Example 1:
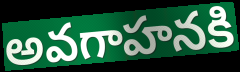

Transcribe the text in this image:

అవగాహనకి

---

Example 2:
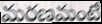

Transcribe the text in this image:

మరణమంటే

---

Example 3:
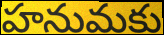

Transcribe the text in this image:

హనుమకు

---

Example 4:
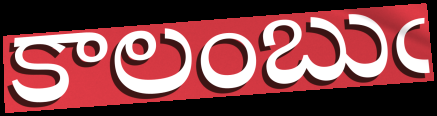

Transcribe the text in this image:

కాలంబుఁ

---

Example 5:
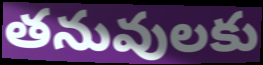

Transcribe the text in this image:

తనువులకు